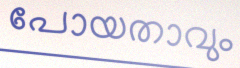
പോയതാവും